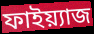
ফাইয়্যাজ